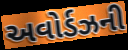
અવોર્ડઝની